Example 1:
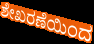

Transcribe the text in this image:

ಶೇಖರಣೆಯಿಂದ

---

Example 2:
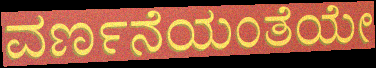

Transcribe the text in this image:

ವರ್ಣನೆಯಂತೆಯೇ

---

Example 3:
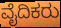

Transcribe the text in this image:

ವೈದಿಕರು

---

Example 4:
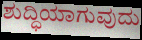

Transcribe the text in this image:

ಶುದ್ಧಿಯಾಗುವುದು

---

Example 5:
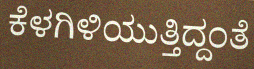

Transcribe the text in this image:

ಕೆಳಗಿಳಿಯುತ್ತಿದ್ದಂತೆ